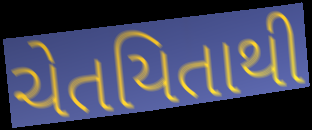
ચેતયિતાથી